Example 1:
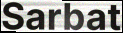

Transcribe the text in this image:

Sarbat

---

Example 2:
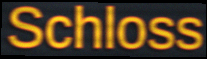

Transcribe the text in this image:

Schloss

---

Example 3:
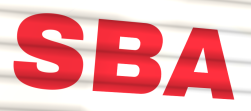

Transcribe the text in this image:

SBA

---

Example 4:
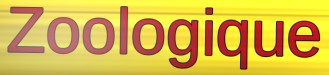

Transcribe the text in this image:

Zoologique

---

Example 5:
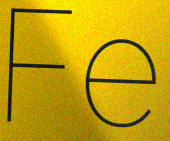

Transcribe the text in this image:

Fe